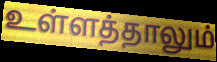
உள்ளத்தாலும்